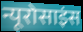
न्यूरोसाइंस